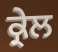
ਕ੍ਰੇਲ